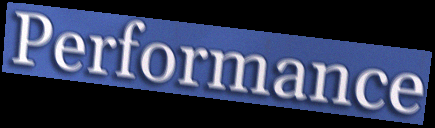
Performance